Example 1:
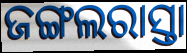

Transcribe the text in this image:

ଜଙ୍ଗଲରାସ୍ତା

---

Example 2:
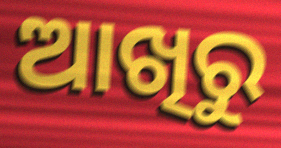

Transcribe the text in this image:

ଆଖିରୁ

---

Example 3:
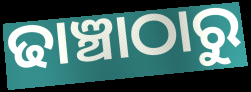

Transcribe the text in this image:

ଢାଞ୍ଚାଠାରୁ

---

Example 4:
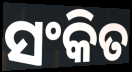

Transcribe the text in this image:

ସଂକିତ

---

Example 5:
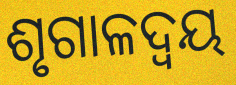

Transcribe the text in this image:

ଶୃଗାଳଦ୍ୱୟ